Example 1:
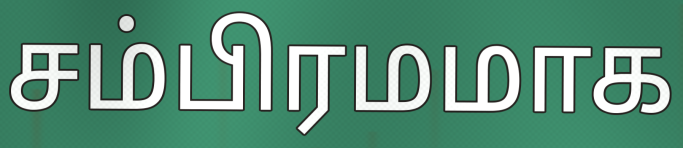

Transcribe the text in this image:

சம்பிரமமாக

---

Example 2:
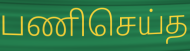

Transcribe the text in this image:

பணிசெய்த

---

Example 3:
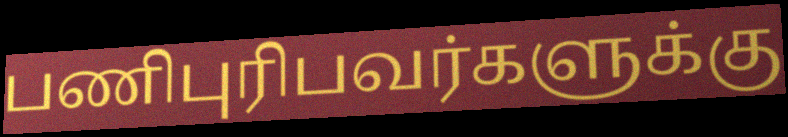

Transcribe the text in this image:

பணிபுரிபவர்களுக்கு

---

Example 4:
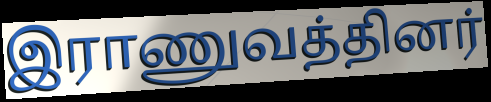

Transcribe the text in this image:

இராணுவத்தினர்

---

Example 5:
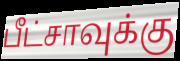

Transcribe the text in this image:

பீட்சாவுக்கு